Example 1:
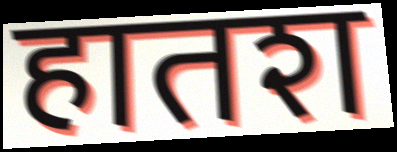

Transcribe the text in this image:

हातश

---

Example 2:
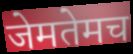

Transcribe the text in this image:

जेमतेमच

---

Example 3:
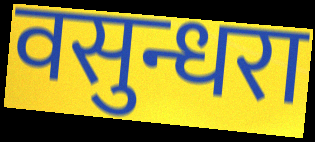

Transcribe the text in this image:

वसुन्धरा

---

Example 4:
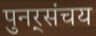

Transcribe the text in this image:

पुनर्संचय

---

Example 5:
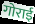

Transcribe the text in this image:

गोराई